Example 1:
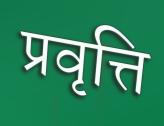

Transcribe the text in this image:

प्रवृत्ति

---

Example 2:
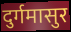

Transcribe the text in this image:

दुर्गमासुर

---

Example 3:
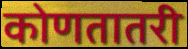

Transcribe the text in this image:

कोणतातरी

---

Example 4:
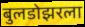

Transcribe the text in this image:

बुलडोझरला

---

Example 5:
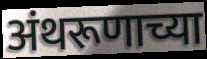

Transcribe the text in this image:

अंथरूणाच्या